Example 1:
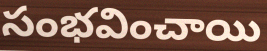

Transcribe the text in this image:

సంభవించాయి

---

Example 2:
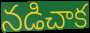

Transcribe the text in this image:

నడిచాక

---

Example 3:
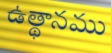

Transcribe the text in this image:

ఉత్థానము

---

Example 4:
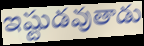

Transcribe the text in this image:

ఇష్టుడవుతాడు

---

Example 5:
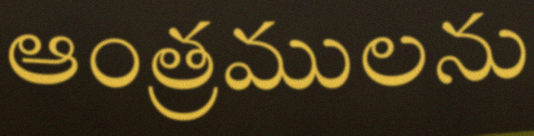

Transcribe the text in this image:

ఆంత్రములను